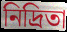
নিদ্রিতা